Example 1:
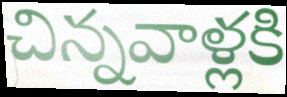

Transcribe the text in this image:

చిన్నవాళ్లకి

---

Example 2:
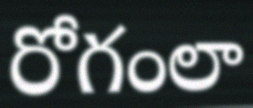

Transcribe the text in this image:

రోగంలా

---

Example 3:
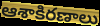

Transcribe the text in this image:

ఆశాకిరణాలు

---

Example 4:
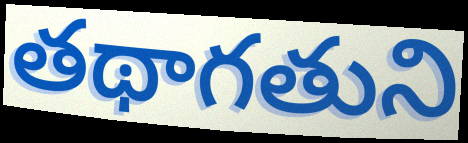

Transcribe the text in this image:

తథాగతుని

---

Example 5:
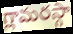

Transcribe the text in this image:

గ్లామరస్గా